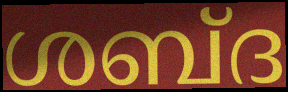
ശബ്ദ